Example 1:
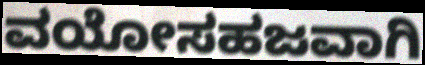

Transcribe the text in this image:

ವಯೋಸಹಜವಾಗಿ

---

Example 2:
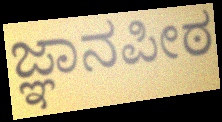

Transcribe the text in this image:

ಜ್ಞಾನಪೀಠ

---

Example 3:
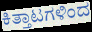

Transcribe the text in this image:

ಕಿತ್ತಾಟಗಳಿಂದ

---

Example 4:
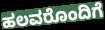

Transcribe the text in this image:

ಹಲವರೊಂದಿಗೆ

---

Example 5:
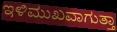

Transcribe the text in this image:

ಇಳಿಮುಖವಾಗುತ್ತಾ